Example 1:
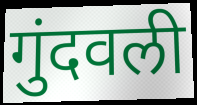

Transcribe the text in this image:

गुंदवली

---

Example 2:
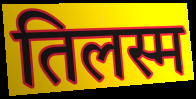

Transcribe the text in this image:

तिलस्म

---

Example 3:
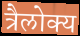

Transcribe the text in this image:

त्रैलोक्य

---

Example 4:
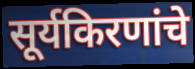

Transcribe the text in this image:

सूर्यकिरणांचे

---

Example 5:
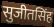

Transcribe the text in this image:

सुजीतसिंह